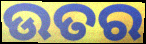
ଉତର